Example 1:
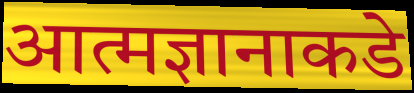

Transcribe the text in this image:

आत्मज्ञानाकडे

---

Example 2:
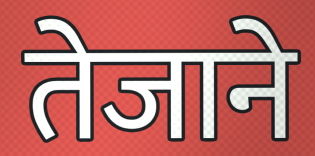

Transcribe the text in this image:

तेजाने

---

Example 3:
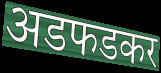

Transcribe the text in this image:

अडफडकर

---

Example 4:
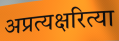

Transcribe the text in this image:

अप्रत्यक्षरित्या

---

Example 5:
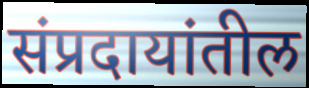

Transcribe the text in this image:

संप्रदायांतील